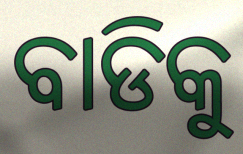
ବାଡିକୁ